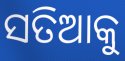
ସତିଆକୁ